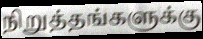
நிறுத்தங்களுக்கு